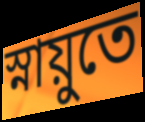
স্নায়ুতে